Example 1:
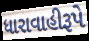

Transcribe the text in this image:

ધારાવાહીરૂપે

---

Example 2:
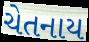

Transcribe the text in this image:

ચેતનાય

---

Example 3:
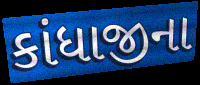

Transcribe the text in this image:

કાંધાજીના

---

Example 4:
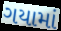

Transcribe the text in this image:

ગયામાં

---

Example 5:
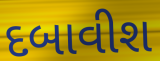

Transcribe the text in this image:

દબાવીશ